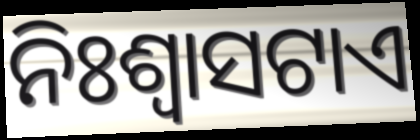
ନିଃଶ୍ଵାସଟାଏ